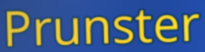
Prunster